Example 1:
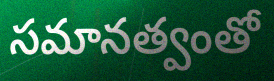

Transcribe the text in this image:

సమానత్వంతో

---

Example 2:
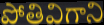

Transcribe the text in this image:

పోతివిగాని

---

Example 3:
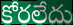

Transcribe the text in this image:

కోరలేదు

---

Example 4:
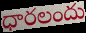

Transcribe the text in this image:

ధారలందు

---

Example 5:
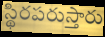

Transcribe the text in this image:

స్థిరపరుస్తారు